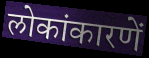
लोकांकारणें